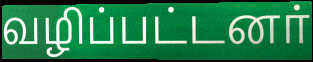
வழிப்பட்டனர்